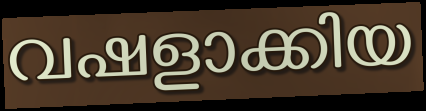
വഷളാക്കിയ